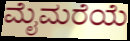
ಮೈಮರೆಯೆ